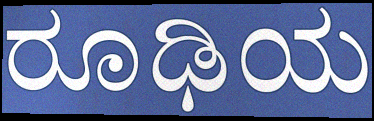
ರೂಢಿಯ